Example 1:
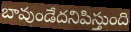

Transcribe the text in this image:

బావుండేదనిపిస్తుంది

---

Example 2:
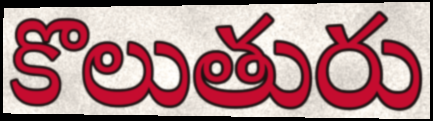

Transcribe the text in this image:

కొలుతురు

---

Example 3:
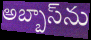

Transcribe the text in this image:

అబ్బాస్‌ను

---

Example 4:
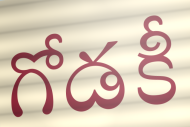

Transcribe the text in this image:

గోడకీ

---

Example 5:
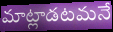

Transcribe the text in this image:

మాట్లాడటమనే